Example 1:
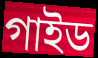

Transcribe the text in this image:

গাইড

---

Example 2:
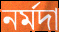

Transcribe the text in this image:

নৰ্মদা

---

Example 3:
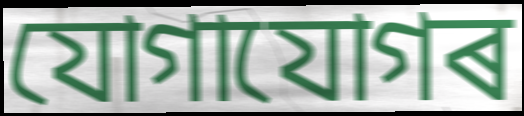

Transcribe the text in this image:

যোগাযোগৰ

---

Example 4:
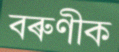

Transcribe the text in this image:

বৰুণীক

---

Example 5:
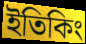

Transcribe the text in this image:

ইতিকিং